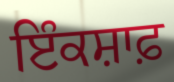
ਇੰਕਸ਼ਾਫ਼